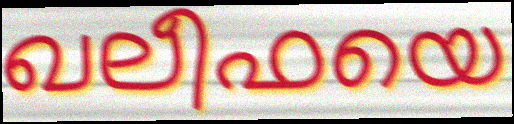
ഖലീഫയെ